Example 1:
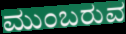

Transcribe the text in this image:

ಮುಂಬರುವ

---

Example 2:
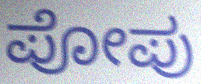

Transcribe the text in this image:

ಪೋಪು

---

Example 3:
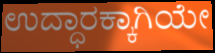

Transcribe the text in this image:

ಉದ್ಧಾರಕ್ಕಾಗಿಯೇ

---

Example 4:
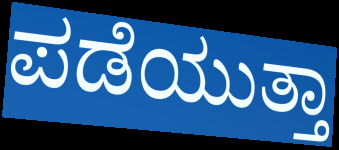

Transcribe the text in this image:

ಪಡೆಯುತ್ತಾ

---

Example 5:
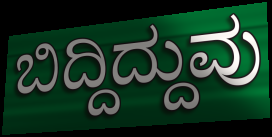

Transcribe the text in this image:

ಬಿದ್ದಿದ್ದುವು